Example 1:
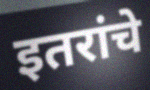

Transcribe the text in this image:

इतरांचे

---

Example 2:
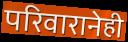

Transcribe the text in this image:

परिवारानेही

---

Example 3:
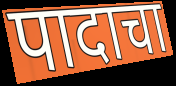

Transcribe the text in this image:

पादाचा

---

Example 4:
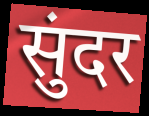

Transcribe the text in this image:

सुंदर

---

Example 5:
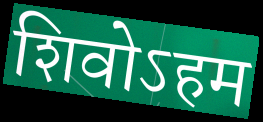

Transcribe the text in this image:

शिवोऽहम